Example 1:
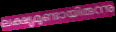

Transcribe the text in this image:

ലക്ഷ്യമുണ്ടായിരുന്നു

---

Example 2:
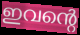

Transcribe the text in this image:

ഇവന്റെ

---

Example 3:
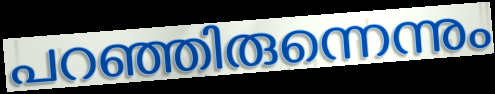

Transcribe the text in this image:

പറഞ്ഞിരുന്നെന്നും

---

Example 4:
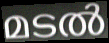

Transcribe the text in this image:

മടൽ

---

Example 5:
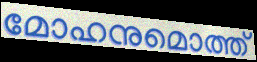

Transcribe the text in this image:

മോഹനുമൊത്ത്